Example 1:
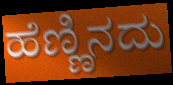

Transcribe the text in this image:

ಹೆಣ್ಣಿನದು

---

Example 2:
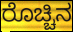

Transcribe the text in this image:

ರೊಚ್ಚಿನ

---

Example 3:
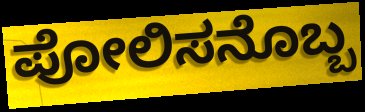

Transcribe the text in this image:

ಪೋಲಿಸನೊಬ್ಬ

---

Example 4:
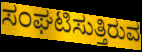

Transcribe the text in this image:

ಸಂಘಟಿಸುತ್ತಿರುವ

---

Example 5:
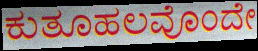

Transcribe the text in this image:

ಕುತೂಹಲವೊಂದೇ